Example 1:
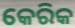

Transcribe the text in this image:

କେରିକ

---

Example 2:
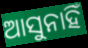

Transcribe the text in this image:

ଆସୁନାହିଁ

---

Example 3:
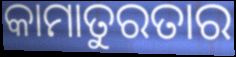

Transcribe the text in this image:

କାମାତୁରତାର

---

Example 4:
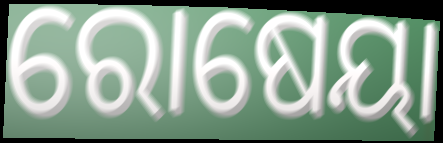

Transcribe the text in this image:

ରୋଷେୟା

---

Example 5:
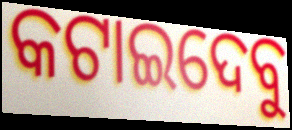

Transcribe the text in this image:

କଟାଇଦେବୁ